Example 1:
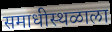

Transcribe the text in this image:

समाधीस्थळाला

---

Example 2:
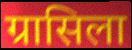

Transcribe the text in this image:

ग्रासिला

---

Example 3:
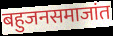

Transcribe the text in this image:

बहुजनसमाजांत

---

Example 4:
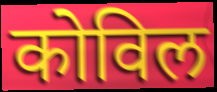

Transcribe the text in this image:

कोविल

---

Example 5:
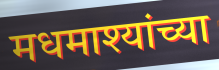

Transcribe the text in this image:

मधमाश्‍यांच्या